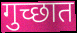
गुच्छात